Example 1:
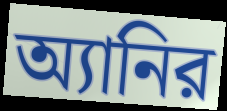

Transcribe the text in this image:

অ্যানির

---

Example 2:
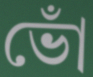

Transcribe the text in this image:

ভোঁ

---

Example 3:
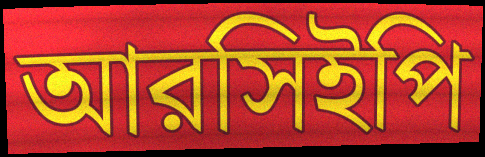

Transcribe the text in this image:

আরসিইপি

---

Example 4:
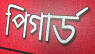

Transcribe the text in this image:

পিগার্ড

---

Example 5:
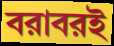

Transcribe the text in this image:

বরাবরই